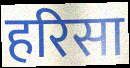
हरिसा